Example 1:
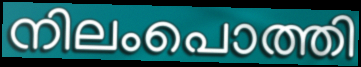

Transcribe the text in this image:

നിലംപൊത്തി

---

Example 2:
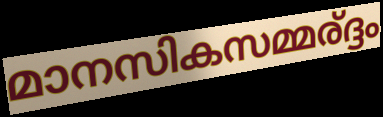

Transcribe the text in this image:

മാനസികസമ്മര്ദ്ദം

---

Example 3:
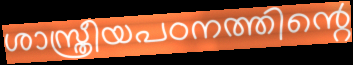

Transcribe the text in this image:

ശാസ്ത്രീയപഠനത്തിന്റെ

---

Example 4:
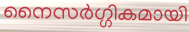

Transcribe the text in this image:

നൈസർഗ്ഗികമായി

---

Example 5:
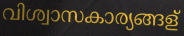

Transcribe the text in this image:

വിശ്വാസകാര്യങ്ങള്